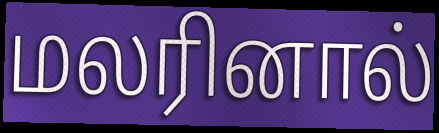
மலரினால்